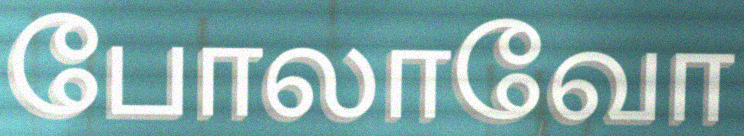
போலாவோ